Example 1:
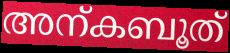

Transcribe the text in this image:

അന്കബൂത്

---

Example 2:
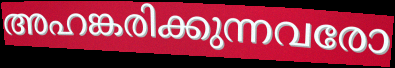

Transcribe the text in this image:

അഹങ്കരിക്കുന്നവരോ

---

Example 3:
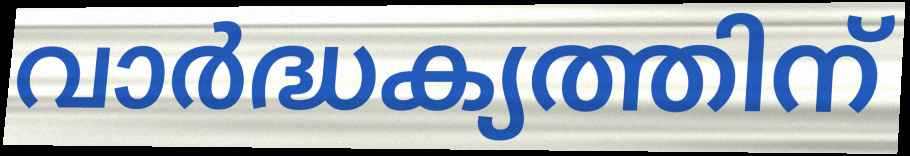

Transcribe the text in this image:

വാർദ്ധക്യത്തിന്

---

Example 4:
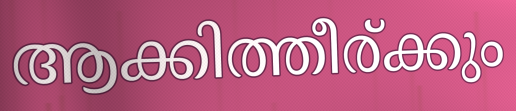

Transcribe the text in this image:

ആക്കിത്തീര്ക്കും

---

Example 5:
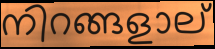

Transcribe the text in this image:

നിറങ്ങളാല്